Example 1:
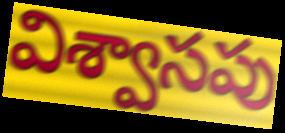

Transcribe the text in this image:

విశ్వాసపు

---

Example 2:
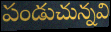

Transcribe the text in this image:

పండుచున్నవి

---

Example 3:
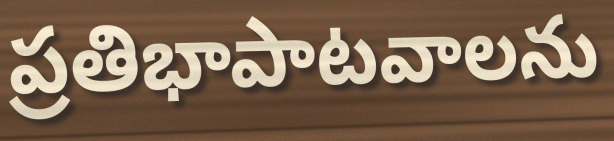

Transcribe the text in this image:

ప్రతిభాపాటవాలను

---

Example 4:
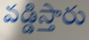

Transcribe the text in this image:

వడ్డిస్తారు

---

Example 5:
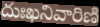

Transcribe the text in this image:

దుఃఖనివారిణి